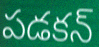
పడకన్